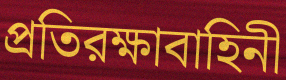
প্রতিরক্ষাবাহিনী